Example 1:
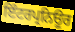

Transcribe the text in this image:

ਇੰਟਰਪ੍ਰਨਿਊਰ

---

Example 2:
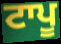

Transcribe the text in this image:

ਟਾਪੂ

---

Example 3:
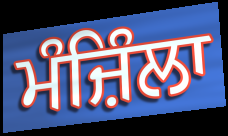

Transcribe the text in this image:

ਮੰਜ਼ਿੰਲਾ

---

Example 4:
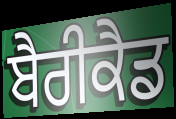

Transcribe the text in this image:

ਬੈਰੀਕੈਡ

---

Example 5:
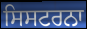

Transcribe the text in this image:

ਸਿਸਟਰਨਾ